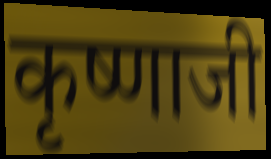
कृष्णाजी